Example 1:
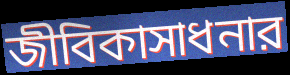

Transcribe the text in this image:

জীবিকাসাধনার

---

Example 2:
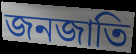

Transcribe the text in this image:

জনজাতি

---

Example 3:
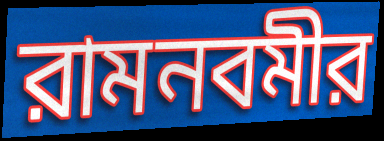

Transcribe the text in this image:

রামনবমীর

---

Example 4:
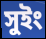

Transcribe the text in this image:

সুইং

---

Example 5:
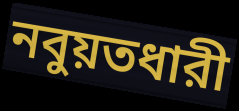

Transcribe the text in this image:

নবুয়তধারী